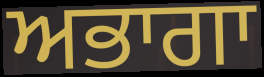
ਅਭਾਗਾ